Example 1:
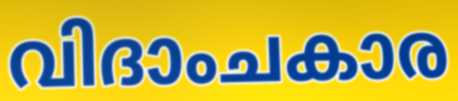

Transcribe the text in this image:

വിദാംചകാര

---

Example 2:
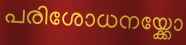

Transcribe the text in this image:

പരിശോധനയ്ക്കോ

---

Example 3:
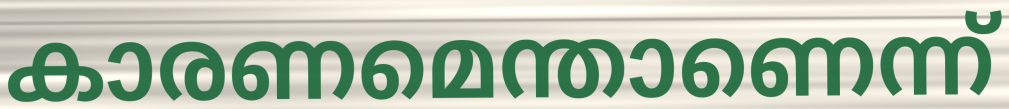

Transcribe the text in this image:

കാരണമെന്താണെന്ന്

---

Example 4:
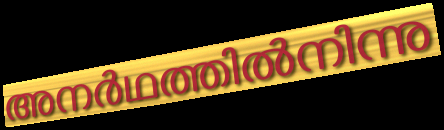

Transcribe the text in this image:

അനർഥത്തിൽനിന്നു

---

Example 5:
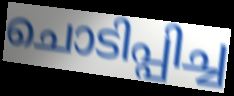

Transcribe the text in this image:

ചൊടിപ്പിച്ച